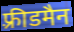
फ़्रीडमैन